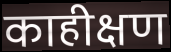
काहीक्षण